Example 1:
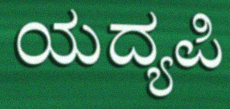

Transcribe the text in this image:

ಯದ್ಯಪಿ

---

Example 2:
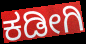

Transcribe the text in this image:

ಕಡೀಗಿ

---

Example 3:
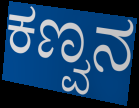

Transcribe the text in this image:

ಕಣ್ವನ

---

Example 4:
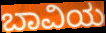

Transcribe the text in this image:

ಬಾವಿಯ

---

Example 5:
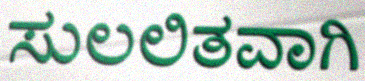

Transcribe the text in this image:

ಸುಲಲಿತವಾಗಿ